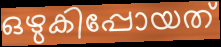
ഒഴുകിപ്പോയത്